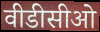
वीडीसीओ